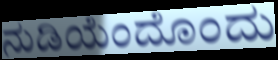
ನುಡಿಯೆಂದೊಂದು